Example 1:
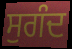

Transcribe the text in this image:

ਸੁਗੰਦ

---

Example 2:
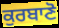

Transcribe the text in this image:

ਕੁਰਬਾਣੋ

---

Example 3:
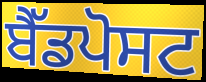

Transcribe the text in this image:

ਬੈੱਡਪੋਸਟ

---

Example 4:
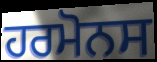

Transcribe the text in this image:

ਹਰਮੋਨਸ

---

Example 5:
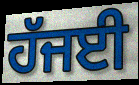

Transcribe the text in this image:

ਹੱਜਈ